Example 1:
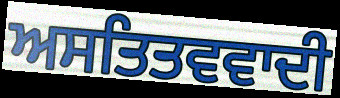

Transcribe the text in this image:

ਅਸਤਿਤਵਵਾਦੀ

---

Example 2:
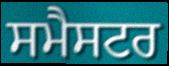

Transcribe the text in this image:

ਸਮੈਸਟਰ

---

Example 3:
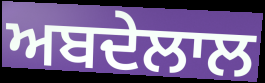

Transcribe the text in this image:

ਅਬਦੇਲਾਲ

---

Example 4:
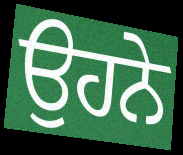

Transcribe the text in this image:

ਉਹਨੇ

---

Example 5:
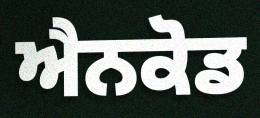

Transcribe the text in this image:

ਐਨਕੋਡ